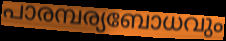
പാരമ്പര്യബോധവും